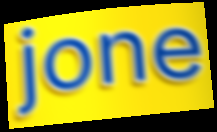
jone